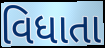
વિધાતા